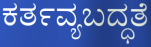
ಕರ್ತವ್ಯಬದ್ಧತೆ